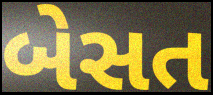
બેસત